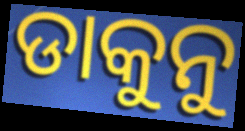
ଡାକୁନୁ